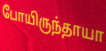
போயிருந்தாயா